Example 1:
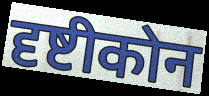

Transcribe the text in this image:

दृष्टीकोन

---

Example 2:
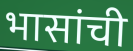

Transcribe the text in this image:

भासांची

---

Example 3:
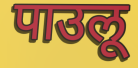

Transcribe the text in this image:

पाउलू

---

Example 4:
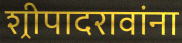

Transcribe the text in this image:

श्रीपादरावांना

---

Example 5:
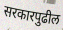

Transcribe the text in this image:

सरकारपुढील